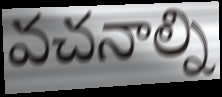
వచనాల్ని